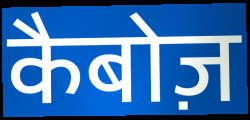
कैबोज़